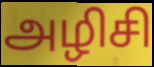
அழிசி